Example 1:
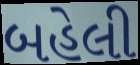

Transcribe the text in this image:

બહેલી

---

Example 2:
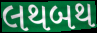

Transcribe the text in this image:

લથબથ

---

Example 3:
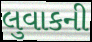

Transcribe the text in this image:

લુવાકની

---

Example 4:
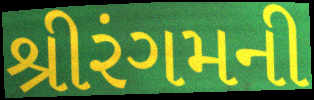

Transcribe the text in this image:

શ્રીરંગમની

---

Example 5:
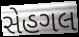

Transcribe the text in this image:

સેહગલ